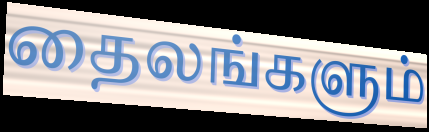
தைலங்களும்